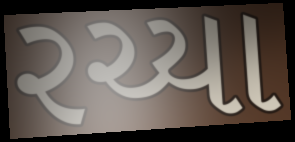
રચ્યા